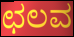
ಛಲವ